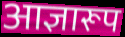
आज्ञारूप